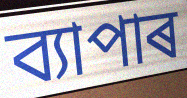
ব্যাপাৰ